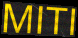
MITI